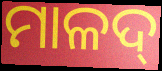
ମାଳଦ୍